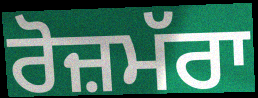
ਰੋਜ਼ਮੱਰਾ